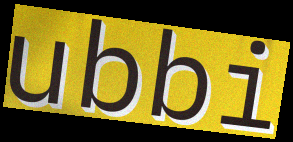
ubbi